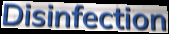
Disinfection